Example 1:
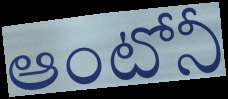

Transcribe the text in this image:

ఆంటోనీ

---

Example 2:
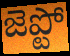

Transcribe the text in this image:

జెప్టో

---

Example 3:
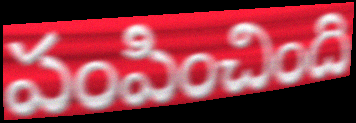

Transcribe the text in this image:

పంపించింది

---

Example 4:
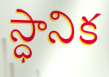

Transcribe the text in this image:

స్ధానిక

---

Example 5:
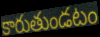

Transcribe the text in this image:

కారుతుండటం